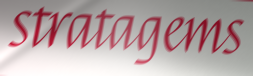
stratagems